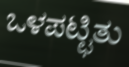
ಒಳಪಟ್ಟಿತು